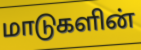
மாடுகளின்